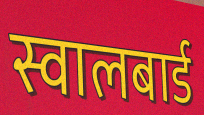
स्वालबार्ड